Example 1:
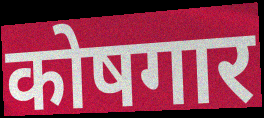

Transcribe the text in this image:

कोषगार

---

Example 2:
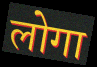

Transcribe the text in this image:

लोगा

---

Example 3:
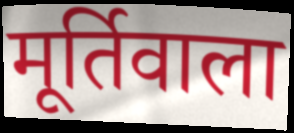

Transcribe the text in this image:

मूर्तिवाला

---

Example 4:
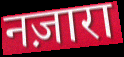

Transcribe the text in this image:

नज़ारा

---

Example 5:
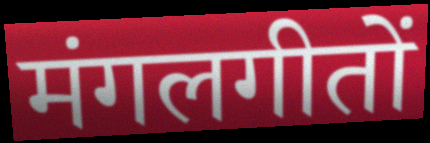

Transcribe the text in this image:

मंगलगीतों